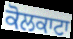
ਕੋਲਕਾਟਾ